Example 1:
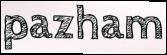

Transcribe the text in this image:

pazham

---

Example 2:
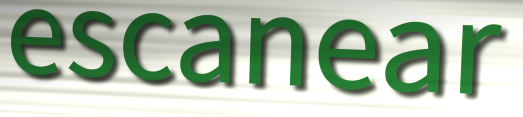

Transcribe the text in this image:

escanear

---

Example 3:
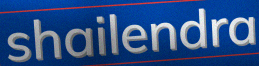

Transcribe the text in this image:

shailendra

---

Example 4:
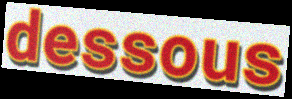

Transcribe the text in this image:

dessous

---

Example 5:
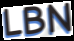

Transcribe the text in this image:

LBN